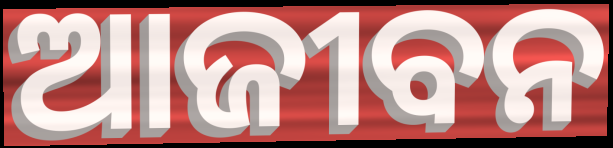
ଆଜୀବନ